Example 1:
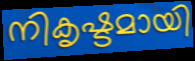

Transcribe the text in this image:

നികൃഷ്ടമായി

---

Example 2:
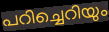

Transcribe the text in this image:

പറിച്ചെറിയും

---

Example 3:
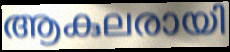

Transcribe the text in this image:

ആകുലരായി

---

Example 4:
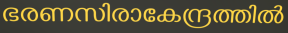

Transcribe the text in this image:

ഭരണസിരാകേന്ദ്രത്തിൽ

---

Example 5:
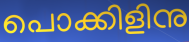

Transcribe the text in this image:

പൊക്കിളിനു